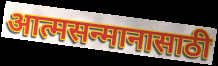
आत्मसन्मानासाठी